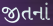
જીતનાં